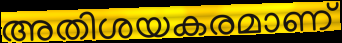
അതിശയകരമാണ്